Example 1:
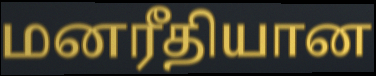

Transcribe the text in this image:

மனரீதியான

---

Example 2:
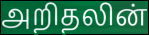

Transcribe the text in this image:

அறிதலின்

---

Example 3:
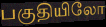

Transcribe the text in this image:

பகுதியிலோ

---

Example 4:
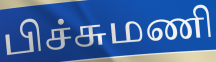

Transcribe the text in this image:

பிச்சுமணி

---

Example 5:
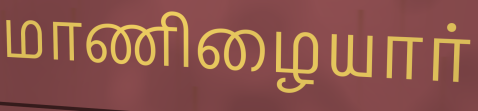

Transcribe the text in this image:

மாணிழையார்